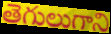
తెగులుగాని